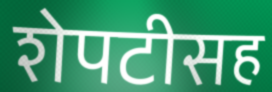
शेपटीसह